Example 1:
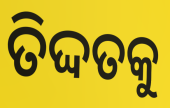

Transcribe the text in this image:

ତିଦ୍ଦତକୁ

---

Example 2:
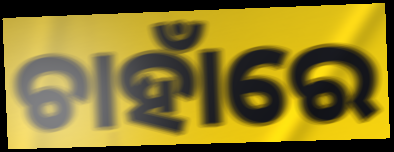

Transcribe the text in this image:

ଚାହାଁରେ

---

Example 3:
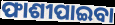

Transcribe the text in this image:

ଫାଶୀପାଇବା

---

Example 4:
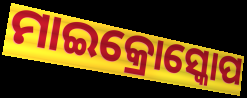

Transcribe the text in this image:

ମାଇକ୍ରୋସ୍କୋପ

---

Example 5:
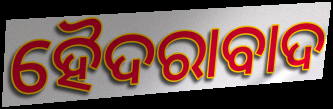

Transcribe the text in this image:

ହୈଦରାବାଦ